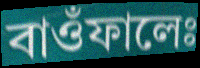
বাওঁফালেঃ